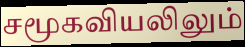
சமூகவியலிலும்